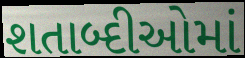
શતાબ્દીઓમાં